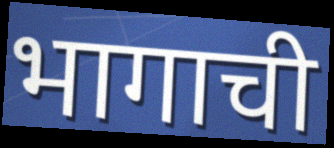
भागाची